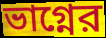
ভাগ্নের